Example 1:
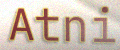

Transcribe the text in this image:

Atni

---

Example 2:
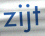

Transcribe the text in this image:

zijt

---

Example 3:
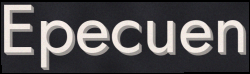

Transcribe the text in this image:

Epecuen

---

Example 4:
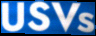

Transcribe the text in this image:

USVs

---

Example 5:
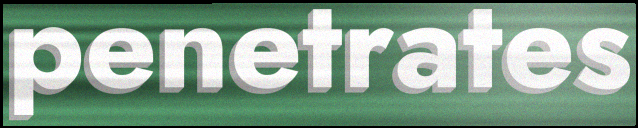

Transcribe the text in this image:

penetrates